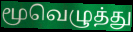
மூவெழுத்து